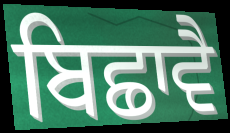
ਬਿਛਾਵੈ